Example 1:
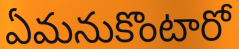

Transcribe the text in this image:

ఏమనుకొంటారో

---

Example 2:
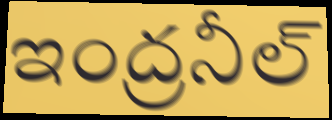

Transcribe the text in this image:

ఇంద్రనీల్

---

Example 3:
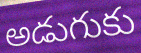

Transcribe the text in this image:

అడుగుకు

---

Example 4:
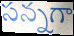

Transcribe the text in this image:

సన్నగా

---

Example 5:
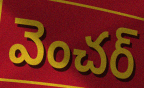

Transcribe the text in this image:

వెంచర్